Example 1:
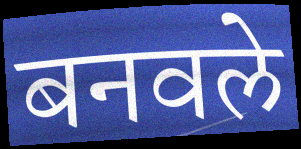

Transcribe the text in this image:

बनवले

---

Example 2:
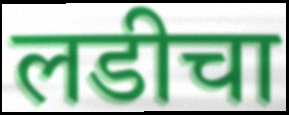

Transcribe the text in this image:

लडीचा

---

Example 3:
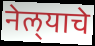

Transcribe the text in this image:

नेल्याचे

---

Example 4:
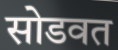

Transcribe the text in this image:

सोडवत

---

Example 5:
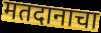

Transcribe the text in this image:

मतदानाचा